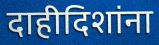
दाहीदिशांना